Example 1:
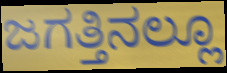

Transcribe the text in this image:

ಜಗತ್ತಿನಲ್ಲೂ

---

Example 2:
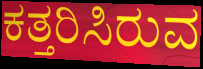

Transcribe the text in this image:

ಕತ್ತರಿಸಿರುವ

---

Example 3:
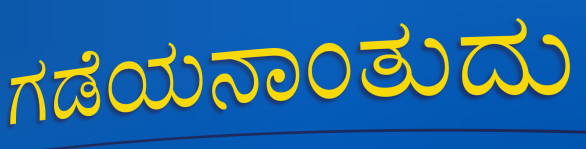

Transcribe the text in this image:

ಗಡೆಯನಾಂತುದು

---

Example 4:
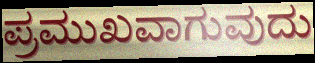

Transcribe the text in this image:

ಪ್ರಮುಖವಾಗುವುದು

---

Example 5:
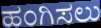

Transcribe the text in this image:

ಹಂಗಿಸಲು